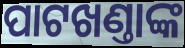
ପାଟଖଣ୍ତାଙ୍କ